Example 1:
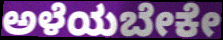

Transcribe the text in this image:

ಅಳೆಯಬೇಕೇ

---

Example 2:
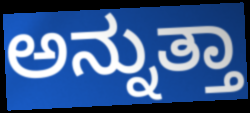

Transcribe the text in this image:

ಅನ್ನುತ್ತಾ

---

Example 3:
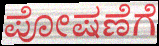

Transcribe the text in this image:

ಪೋಷಣೆಗೆ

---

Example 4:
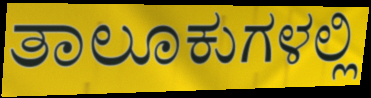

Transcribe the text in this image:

ತಾಲೂಕುಗಳಲ್ಲಿ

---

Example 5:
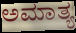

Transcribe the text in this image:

ಅಮಾತ್ಯ